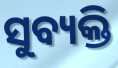
ସୁବ୍ୟକ୍ତି